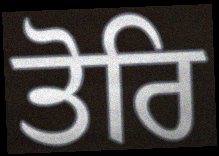
ਤੋਰਿ